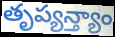
తృప్యన్త్యాం